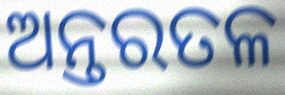
ଅନ୍ତରତଳ